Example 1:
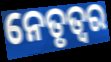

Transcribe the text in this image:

ନେତୃତ୍ବର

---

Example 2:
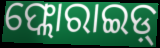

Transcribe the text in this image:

ଫ୍ଲୋରାଇଡ଼୍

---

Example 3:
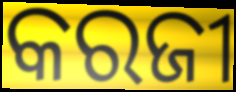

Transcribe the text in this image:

କରଜୀ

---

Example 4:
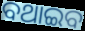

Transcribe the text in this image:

ବଥାଇବ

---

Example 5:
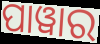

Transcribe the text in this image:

ପାୱାର